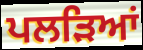
ਪਲੜਿਆਂ